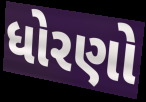
ધોરણો